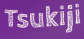
Tsukiji